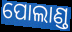
ପୋଲାଣ୍ଡ